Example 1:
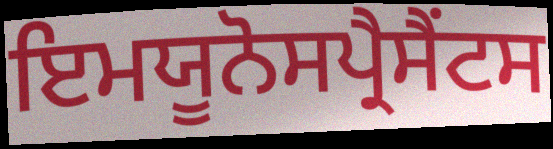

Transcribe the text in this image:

ਇਮਯੂਨੋਸਪ੍ਰੈਸੈਂਟਸ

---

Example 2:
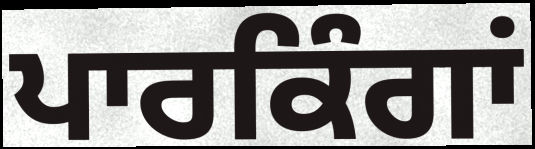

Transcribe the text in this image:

ਪਾਰਕਿੰਗਾਂ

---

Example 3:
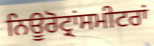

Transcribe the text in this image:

ਨਿਊਰੋਟ੍ਰਾਂਸਮੀਟਰਾਂ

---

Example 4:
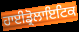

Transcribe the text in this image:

ਹਾਈਡ੍ਰੋਲਾਇਟਿਕ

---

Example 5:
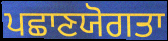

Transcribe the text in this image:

ਪਛਾਣਯੋਗਤਾ